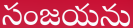
సంజయను